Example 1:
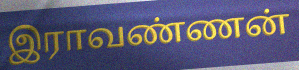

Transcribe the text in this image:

இராவண்ணன்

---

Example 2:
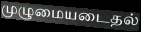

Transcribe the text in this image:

முழுமையடைதல்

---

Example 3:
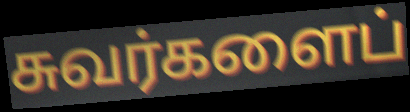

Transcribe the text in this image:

சுவர்களைப்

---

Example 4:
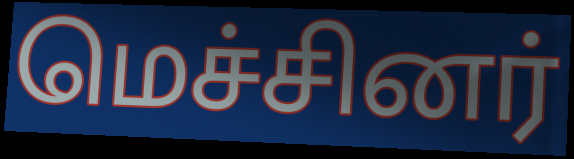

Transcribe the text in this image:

மெச்சினர்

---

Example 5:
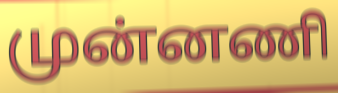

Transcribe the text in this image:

முன்னணி